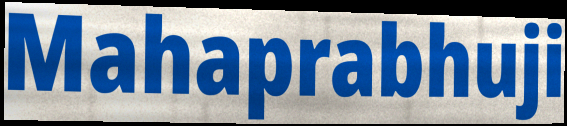
Mahaprabhuji